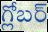
గ్లోబర్